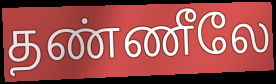
தண்ணீலே